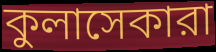
কুলাসেকারা